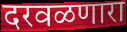
दरवळणारा